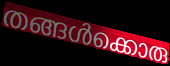
തങ്ങൾക്കൊരു